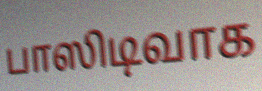
பாஸிடிவாக